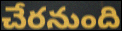
చేరనుంది